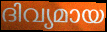
ദിവ്യമായ